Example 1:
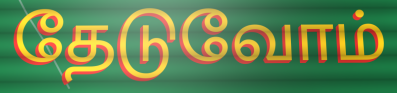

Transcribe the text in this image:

தேடுவோம்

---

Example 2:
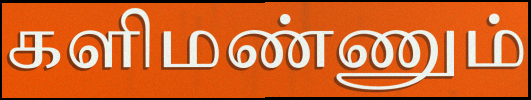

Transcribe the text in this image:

களிமண்ணும்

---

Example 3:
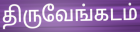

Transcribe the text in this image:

திருவேங்கடம்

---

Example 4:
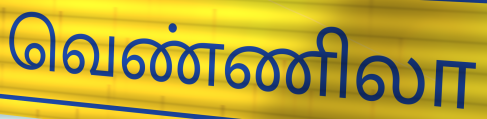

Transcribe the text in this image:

வெண்ணிலா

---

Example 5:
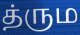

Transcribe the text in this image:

த்ரும